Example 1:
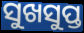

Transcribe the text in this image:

ସୁଖସୁପ୍ତ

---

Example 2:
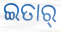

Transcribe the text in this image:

ଇତାର୍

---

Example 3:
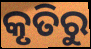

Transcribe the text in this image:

କୃତିରୁ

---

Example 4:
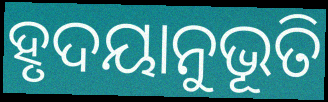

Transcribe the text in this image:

ହୃଦୟାନୁଭୂତି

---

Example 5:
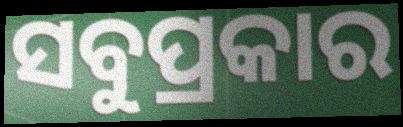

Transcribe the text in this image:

ସବୁପ୍ରକାର